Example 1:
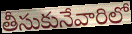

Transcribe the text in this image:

తీసుకునేవారిలో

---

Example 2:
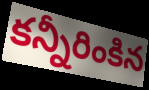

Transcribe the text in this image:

కన్నీరింకిన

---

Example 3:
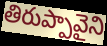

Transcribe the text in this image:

తిరుప్పావైని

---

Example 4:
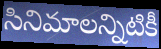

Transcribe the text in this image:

సినిమాలన్నిటికీ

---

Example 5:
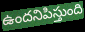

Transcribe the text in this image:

ఉందనిపిస్తుంది